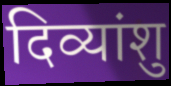
दिव्यांशु